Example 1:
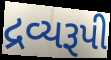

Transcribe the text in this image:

દ્રવ્યરૂપી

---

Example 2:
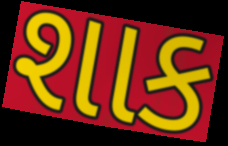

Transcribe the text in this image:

શાક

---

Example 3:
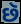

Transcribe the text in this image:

છૅ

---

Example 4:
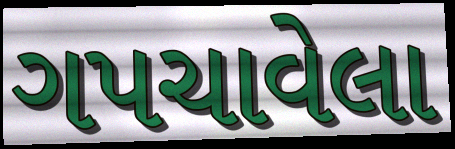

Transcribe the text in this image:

ગપચાવેલા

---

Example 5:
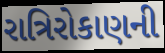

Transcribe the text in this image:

રાત્રિરોકાણની